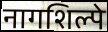
नागशिल्पे